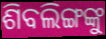
ଶିବଲିଙ୍ଗଙ୍କୁ